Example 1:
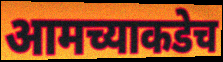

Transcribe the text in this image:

आमच्याकडेच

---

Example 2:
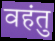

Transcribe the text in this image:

वहंतु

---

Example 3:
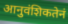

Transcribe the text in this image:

आनुवंशिकतेनं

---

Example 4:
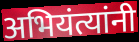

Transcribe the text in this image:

अभियंत्यांनी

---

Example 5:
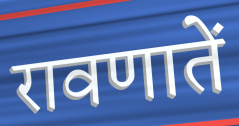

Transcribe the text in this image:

रावणातें